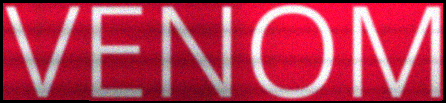
VENOM